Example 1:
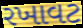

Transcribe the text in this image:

રખાવટ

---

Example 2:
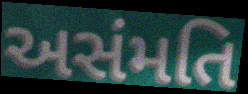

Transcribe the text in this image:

અસંમતિ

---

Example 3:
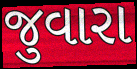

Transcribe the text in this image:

જુવારા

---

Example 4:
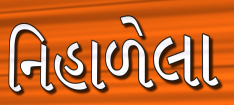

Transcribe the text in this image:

નિહાળેલા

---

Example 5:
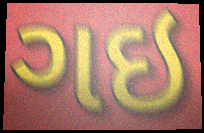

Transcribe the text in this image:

ગઇ